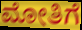
ಮೋತಿಗೆ